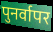
पुनर्वापर